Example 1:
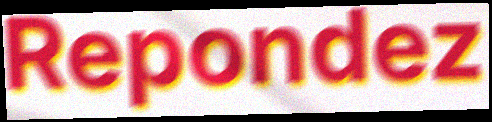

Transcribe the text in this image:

Repondez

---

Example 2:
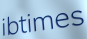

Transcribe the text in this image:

ibtimes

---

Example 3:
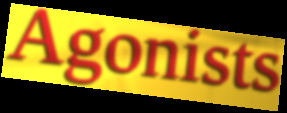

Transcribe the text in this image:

Agonists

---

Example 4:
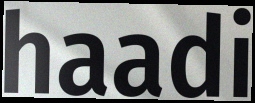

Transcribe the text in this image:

haadi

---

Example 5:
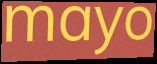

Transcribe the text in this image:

mayo